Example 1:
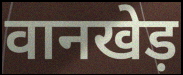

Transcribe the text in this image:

वानखेड़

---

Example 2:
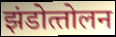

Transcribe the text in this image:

झंडोत्‍तोलन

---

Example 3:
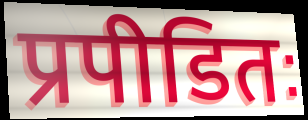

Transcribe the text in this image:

प्रपीडितः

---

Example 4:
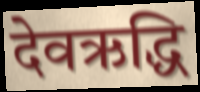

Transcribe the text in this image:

देवऋद्धि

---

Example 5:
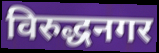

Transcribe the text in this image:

विरुद्धनगर